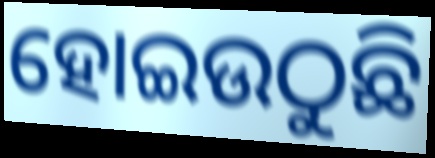
ହୋଇଉଠୁଛି